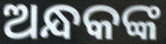
ଅନ୍ଧକଙ୍କ